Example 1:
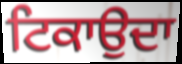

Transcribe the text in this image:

ਟਿਕਾਉਦਾ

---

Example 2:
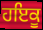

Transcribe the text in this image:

ਹਇਕੂ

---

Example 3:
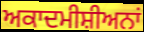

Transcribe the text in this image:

ਅਕਾਦਮੀਸ਼ੀਅਨਾਂ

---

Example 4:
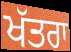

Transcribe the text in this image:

ਖੱਤਰਾ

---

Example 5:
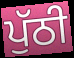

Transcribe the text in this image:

ਪੁੱਠੀ